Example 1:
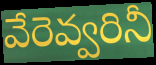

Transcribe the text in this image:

వేరెవ్వరినీ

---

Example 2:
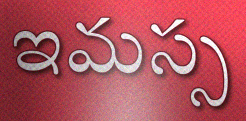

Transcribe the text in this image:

ఇమస్స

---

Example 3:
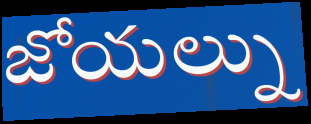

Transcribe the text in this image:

జోయల్ను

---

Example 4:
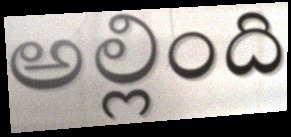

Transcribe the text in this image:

అల్లింది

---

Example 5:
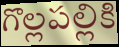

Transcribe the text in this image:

గొల్లపల్లికి